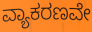
ವ್ಯಾಕರಣವೇ